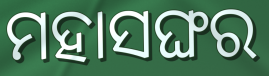
ମହାସଙ୍ଘର